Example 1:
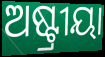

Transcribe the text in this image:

ଅଷ୍ଟ୍ରୀୟା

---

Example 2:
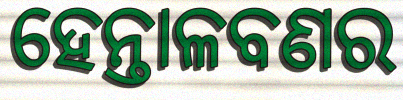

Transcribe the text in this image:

ହେନ୍ତାଳବଣର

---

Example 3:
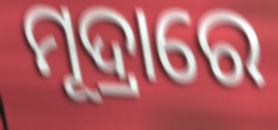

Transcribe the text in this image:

ମୂଦ୍ରାରେ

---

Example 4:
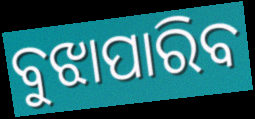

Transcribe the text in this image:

ବୁଝାପାରିବ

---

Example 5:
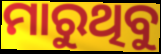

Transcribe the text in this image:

ମାରୁଥିବୁ